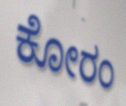
ಕೋರಂ